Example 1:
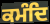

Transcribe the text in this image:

ਕਮੰਦਿ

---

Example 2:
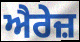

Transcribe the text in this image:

ਐਰੇਜ਼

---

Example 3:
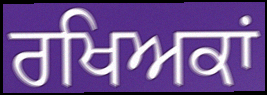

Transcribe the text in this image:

ਰਖਿਅਕਾਂ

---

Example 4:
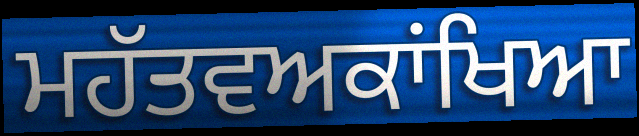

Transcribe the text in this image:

ਮਹੱਤਵਅਕਾਂਖਿਆ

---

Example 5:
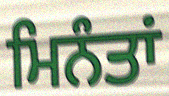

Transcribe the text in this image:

ਮਿਨੰਤਾਂ